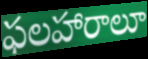
ఫలహారాలూ